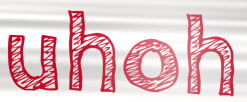
uhoh